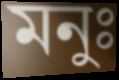
মনুঃ